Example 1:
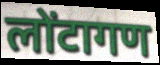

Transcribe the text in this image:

लोंटागण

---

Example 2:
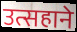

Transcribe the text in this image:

उत्सहाने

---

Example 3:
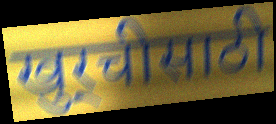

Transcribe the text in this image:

खुर्चीसाठी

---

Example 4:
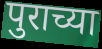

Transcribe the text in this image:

पुराच्या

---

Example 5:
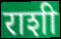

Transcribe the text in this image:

राशी